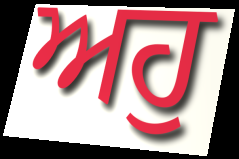
ਅਹੁ